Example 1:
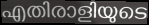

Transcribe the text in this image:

എതിരാളിയുടെ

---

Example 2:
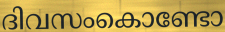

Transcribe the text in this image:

ദിവസംകൊണ്ടോ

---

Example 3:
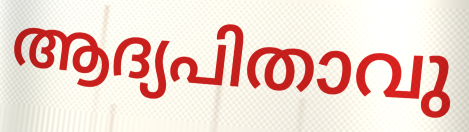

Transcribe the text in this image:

ആദ്യപിതാവു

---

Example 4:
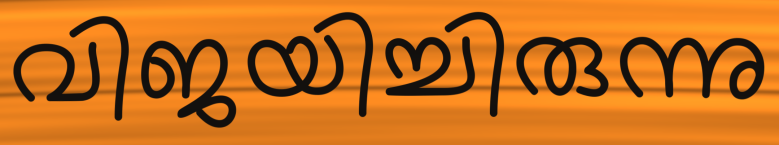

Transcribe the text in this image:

വിജയിച്ചിരുന്നു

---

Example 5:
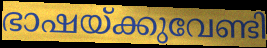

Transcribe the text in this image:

ഭാഷയ്ക്കുവേണ്ടി